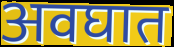
अवघात